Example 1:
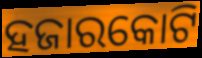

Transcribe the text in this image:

ହଜାରକୋଟି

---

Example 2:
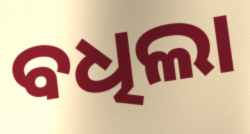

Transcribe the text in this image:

ବଧିଲା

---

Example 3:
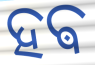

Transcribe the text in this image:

ହଵ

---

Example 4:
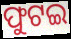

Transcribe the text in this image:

ଫୁଟଇ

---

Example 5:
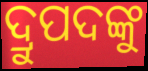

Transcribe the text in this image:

ଦ୍ରୁପଦଙ୍କୁ